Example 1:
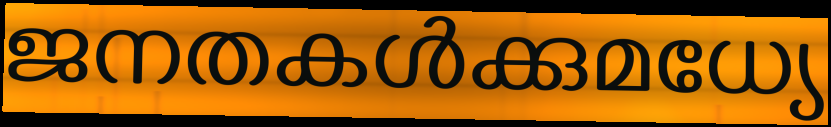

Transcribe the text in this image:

ജനതകൾക്കുമധ്യേ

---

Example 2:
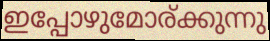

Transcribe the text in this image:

ഇപ്പോഴുമോര്ക്കുന്നു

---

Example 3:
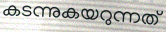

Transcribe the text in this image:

കടന്നുകയറുന്നത്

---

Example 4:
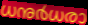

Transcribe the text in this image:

ധനുർധരാ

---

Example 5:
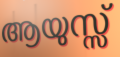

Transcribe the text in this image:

ആയുസ്സ്